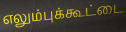
எலும்புக்கூட்டை